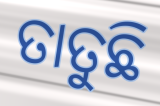
ତାତୁଛି